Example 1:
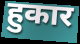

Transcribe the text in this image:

हुकार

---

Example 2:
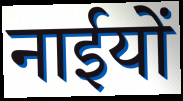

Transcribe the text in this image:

नाईयों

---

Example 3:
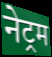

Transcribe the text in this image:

नेट्रम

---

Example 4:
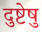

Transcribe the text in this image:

दुष्टेषु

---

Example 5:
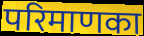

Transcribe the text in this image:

परिमाणका